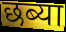
छब्या